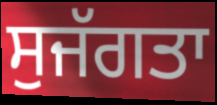
ਸੁਜੱਗਤਾ